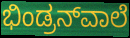
ಭಿಂಡ್ರನ್‌ವಾಲೆ